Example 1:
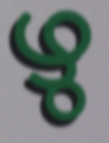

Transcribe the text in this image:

ഴു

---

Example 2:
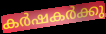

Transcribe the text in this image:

കർഷകർക്കു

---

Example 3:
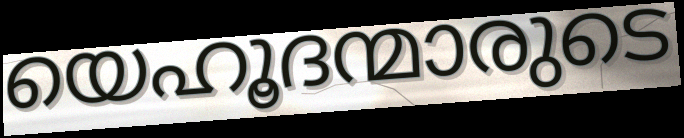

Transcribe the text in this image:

യെഹൂദന്മാരുടെ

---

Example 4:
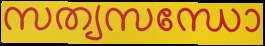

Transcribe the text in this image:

സത്യസന്ധോ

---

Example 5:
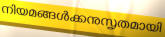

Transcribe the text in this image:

നിയമങ്ങൾക്കനുസൃതമായി